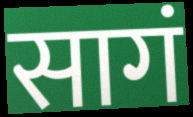
सागं